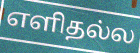
எளிதல்ல